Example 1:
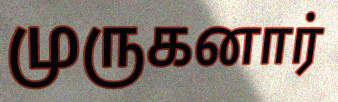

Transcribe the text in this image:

முருகனார்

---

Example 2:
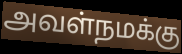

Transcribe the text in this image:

அவள்நமக்கு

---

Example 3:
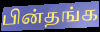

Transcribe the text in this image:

பின்தங்க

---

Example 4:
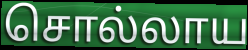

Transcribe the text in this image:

சொல்லாய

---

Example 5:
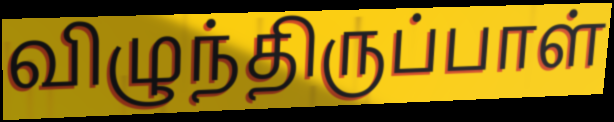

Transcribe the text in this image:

விழுந்திருப்பாள்